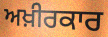
ਅਖ਼ੀਰਕਾਰ